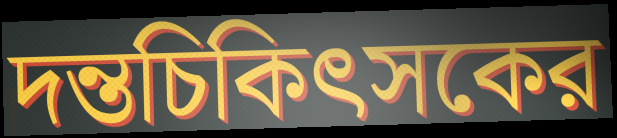
দন্তচিকিৎসকের